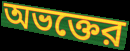
অভক্তের